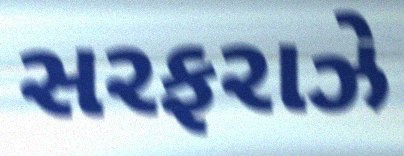
સરફરાઝે